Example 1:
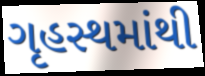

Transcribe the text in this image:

ગૃહસ્થમાંથી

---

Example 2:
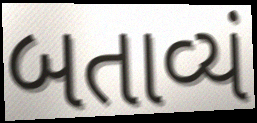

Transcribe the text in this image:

બતાવ્યં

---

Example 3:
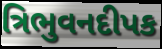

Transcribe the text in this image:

ત્રિભુવનદીપક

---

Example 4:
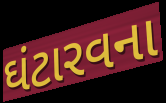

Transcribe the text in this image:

ઘંટારવના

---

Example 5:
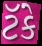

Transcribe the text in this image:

ટૅંકે